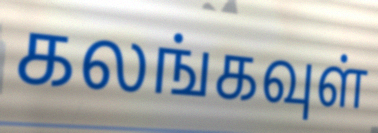
கலங்கவுள்